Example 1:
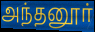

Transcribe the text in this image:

அந்தனூர்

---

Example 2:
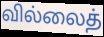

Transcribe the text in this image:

வில்லைத்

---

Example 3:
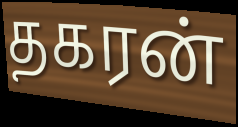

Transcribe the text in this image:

தகரன்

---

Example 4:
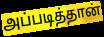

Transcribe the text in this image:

அப்படித்தான்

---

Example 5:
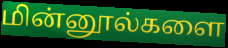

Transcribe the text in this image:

மின்னூல்களை